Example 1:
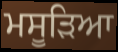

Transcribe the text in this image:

ਮਸੂੜਿਆ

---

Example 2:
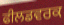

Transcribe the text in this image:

ਫੀਲਡਵਰਕ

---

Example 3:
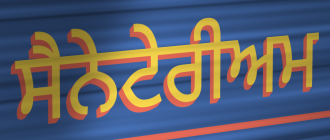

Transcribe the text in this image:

ਸੈਨੇਟੇਰੀਅਮ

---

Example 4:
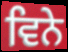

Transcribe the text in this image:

ਵਿਨੇ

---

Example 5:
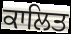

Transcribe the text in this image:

ਕਾਲਿਤ